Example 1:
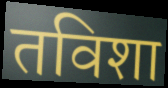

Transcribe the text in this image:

तविशा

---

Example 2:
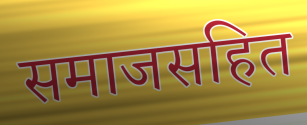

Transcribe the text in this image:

समाजसहित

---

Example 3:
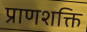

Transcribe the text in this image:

प्राणशक्ति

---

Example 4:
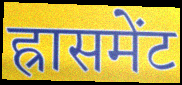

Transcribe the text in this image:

ह्रासमेंट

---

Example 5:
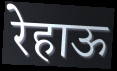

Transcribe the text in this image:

रेहाऊ